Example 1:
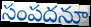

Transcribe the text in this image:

సంపదనూ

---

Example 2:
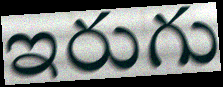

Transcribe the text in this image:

ఇరుగు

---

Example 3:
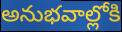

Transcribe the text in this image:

అనుభవాల్లోకి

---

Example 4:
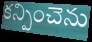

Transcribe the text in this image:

కన్పించెను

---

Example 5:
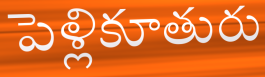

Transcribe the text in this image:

పెళ్లికూతురు